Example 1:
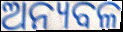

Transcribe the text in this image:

ଅନ୍ୟବଳ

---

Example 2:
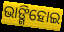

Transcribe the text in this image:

ଭାଙ୍ଗିହୋଇ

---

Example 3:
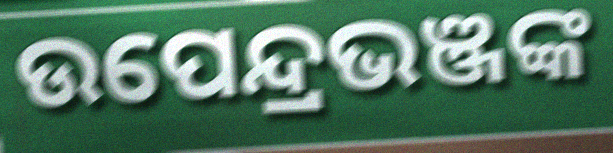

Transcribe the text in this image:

ଉପେନ୍ଦ୍ରଭଞ୍ଜଙ୍କ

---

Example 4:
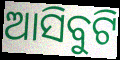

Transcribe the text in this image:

ଆସିବୁଟି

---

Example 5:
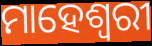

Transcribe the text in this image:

ମାହେଶ୍ଵରୀ